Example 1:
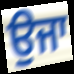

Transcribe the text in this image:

ਉਜਾ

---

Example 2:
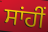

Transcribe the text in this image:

ਸਾਂਹੀਂ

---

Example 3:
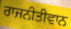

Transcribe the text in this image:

ਰਾਜਨੀਤੀਵਾਨ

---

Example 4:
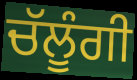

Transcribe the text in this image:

ਚੱਲੂੰਗੀ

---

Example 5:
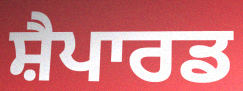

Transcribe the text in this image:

ਸ਼ੈਪਾਰਡ